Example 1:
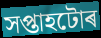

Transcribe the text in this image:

সপ্তাহটোৰ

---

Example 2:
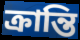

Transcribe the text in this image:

ক্ৰান্তি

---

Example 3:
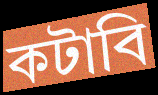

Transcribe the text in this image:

কটাবি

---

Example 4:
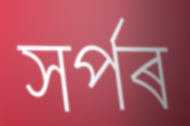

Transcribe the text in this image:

সৰ্পৰ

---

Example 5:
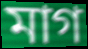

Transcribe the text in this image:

মাগ